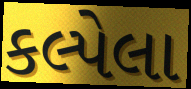
કલ્પેલા